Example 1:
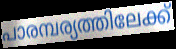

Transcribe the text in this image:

പാരമ്പര്യത്തിലേക്ക്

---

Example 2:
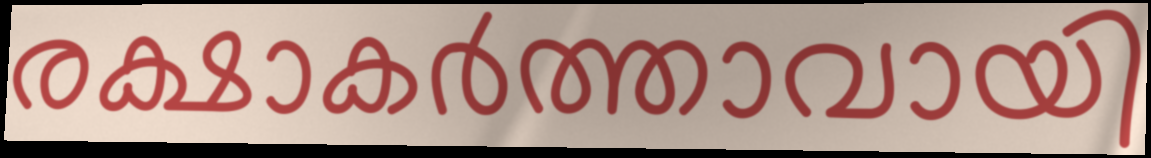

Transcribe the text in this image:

രക്ഷാകർത്താവായി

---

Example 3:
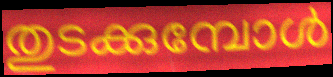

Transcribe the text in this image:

തുടക്കുമ്പോൾ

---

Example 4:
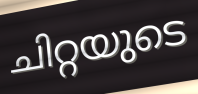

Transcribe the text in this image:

ചിറ്റയുടെ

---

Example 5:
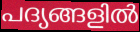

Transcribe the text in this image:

പദ്യങ്ങളിൽ